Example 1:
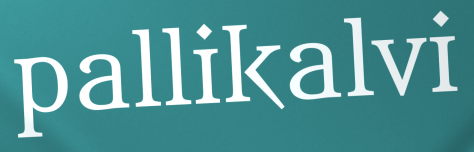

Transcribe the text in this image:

pallikalvi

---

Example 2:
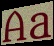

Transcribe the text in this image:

Aa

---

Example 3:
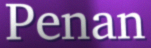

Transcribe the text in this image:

Penan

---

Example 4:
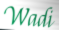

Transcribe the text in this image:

Wadi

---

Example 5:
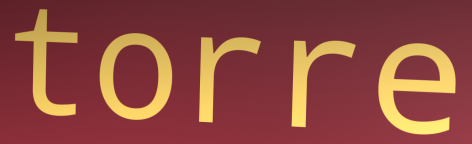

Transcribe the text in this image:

torre